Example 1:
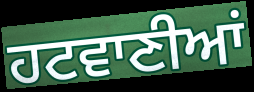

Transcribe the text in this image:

ਹਟਵਾਣੀਆਂ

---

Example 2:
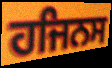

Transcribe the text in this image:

ਹਜਿਨਸ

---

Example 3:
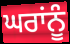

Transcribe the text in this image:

ਘਰਾਂਨੂੰ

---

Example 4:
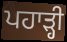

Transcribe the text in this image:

ਪਹਾੜ੍ਹੀ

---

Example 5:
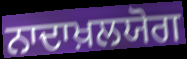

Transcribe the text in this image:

ਨਾਦਾਖ਼ਲਯੋਗ